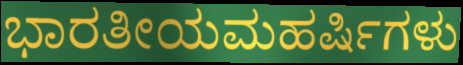
ಭಾರತೀಯಮಹರ್ಷಿಗಳು